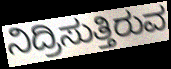
ನಿದ್ರಿಸುತ್ತಿರುವ